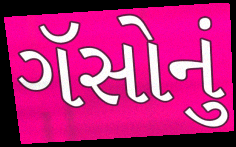
ગૅસોનું